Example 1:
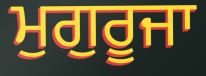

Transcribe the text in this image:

ਮੁਗੁਰੂਜਾ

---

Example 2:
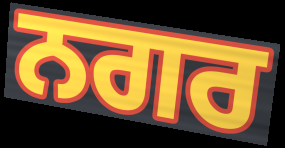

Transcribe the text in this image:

ਨਗਰ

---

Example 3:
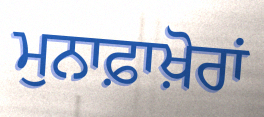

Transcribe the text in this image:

ਮੁਨਾਫ਼ਾਖ਼ੋਰਾਂ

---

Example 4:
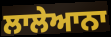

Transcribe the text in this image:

ਲਾਲੇਆਨਾ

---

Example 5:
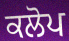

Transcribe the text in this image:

ਕਲੋਪ